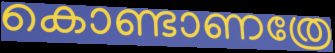
കൊണ്ടാണത്രേ